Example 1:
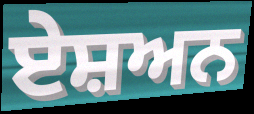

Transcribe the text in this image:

ਏਸ਼ਅਨ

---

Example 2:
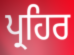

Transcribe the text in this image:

ਪ੍ਰਹਿਰ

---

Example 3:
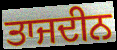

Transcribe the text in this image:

ਤਾਜਦੀਨ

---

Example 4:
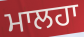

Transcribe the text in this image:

ਮਾਲਹਾ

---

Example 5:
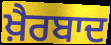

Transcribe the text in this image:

ਖ਼ੈਰਬਾਦ